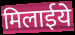
मिलाईये